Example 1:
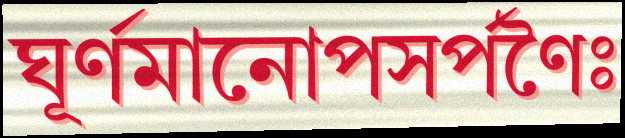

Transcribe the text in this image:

ঘূর্ণমানোপসর্পণৈঃ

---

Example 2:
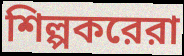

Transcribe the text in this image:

শিল্পকরেরা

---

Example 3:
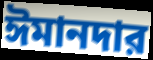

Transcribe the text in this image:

ঈমানদার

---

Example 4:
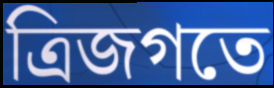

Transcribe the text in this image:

ত্রিজগতে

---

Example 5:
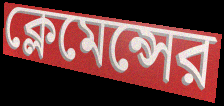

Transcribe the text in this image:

ক্লেমেন্সের